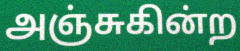
அஞ்சுகின்ற